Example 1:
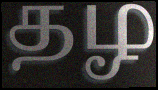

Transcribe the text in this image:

தழ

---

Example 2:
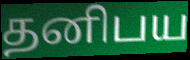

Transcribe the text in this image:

தனிபய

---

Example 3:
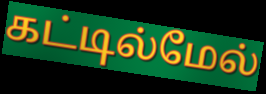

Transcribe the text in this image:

கட்டில்மேல்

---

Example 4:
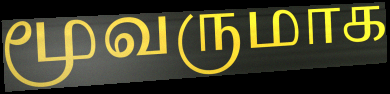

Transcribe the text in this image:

மூவருமாக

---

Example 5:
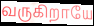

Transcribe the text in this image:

வருகிறாயே